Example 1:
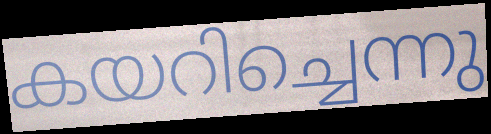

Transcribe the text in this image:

കയറിച്ചെന്നു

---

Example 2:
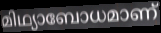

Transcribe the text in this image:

മിഥ്യാബോധമാണ്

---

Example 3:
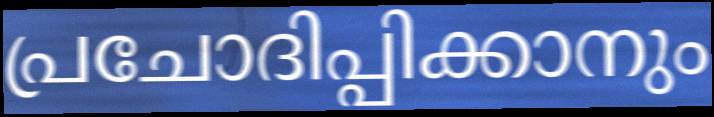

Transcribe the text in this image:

പ്രചോദിപ്പിക്കാനും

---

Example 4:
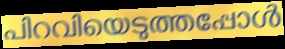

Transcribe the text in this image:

പിറവിയെടുത്തപ്പോൾ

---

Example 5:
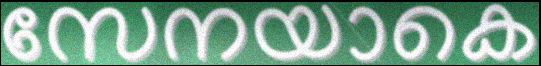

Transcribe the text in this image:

സേനയാകെ